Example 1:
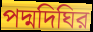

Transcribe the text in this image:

পদ্মদিঘির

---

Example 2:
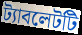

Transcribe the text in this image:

ট্যাবলেটটি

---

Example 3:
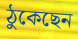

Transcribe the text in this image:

ঠুকেছেন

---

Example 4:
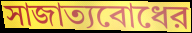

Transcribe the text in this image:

সাজাত্যবোধের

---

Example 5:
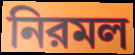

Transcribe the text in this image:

নিরমল